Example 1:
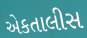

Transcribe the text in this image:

એકતાલીસ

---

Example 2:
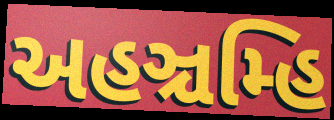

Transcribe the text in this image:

અહઞ્ચમ્હિ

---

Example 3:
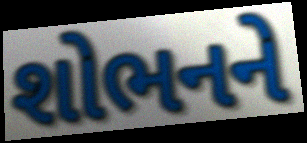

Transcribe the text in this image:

શોભનને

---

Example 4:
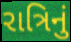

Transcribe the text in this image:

રાત્રિનું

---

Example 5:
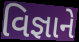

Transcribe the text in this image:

વિજ્ઞાને